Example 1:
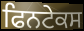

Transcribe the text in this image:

ਫਿਨਟੇਕਸ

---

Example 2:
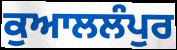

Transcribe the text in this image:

ਕੁਆਲਲੰਪੁਰ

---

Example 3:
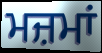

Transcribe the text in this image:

ਮਜ਼ਮਾਂ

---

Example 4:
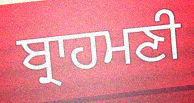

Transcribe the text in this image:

ਬ੍ਰਾਹਮਣੀ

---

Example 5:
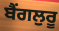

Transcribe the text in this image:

ਬੈਂਗਲੁਰੂ